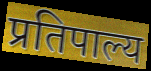
प्रतिपाल्य